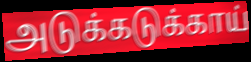
அடுக்கடுக்காய்